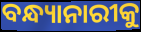
ବନ୍ଧ୍ୟାନାରୀକୁ